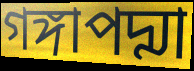
গঙ্গাপদ্মা